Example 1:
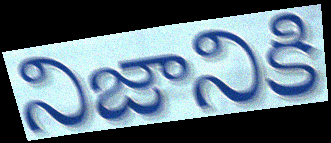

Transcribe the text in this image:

నిజానికి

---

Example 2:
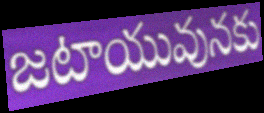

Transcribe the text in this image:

జటాయువునకు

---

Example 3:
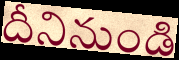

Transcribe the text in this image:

దీనినుండి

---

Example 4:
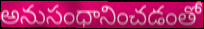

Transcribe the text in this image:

అనుసంధానించడంతో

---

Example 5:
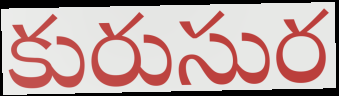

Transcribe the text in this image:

కురుసుర